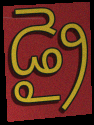
డ్రై